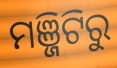
ମଞ୍ଜିଟିରୁ